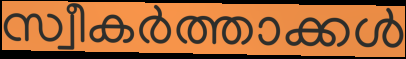
സ്വീകർത്താക്കൾ